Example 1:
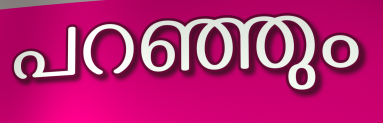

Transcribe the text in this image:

പറഞ്ഞും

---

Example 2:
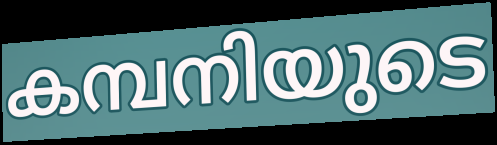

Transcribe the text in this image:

കമ്പനിയുടെ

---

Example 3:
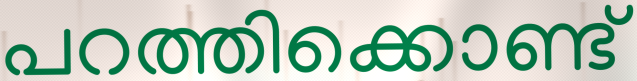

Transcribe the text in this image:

പറത്തിക്കൊണ്ട്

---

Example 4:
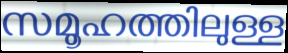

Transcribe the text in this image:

സമൂഹത്തിലുള്ള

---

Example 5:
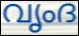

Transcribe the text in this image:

വൃംദ